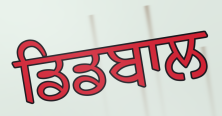
ਡਿਡਬਾਲ